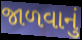
જાળવાનું